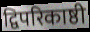
द्विपरिकाष्ठी